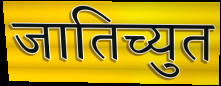
जातिच्युत